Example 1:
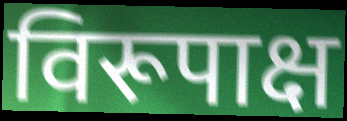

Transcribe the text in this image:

विरूपाक्ष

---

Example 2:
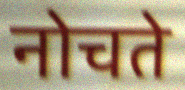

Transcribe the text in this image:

नोचते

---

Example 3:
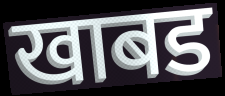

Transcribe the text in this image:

खाबड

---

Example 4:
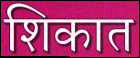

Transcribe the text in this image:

शिकात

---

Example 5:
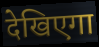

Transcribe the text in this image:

देखिएगा